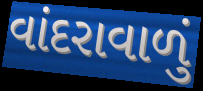
વાંદરાવાળું